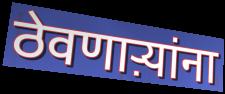
ठेवणाऱ्‍यांना